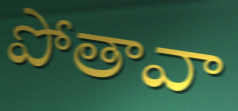
పోతావా